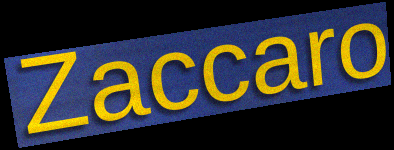
Zaccaro